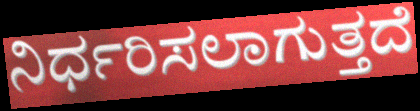
ನಿರ್ಧರಿಸಲಾಗುತ್ತದೆ